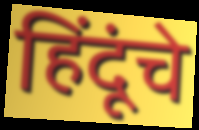
हिंदूंचे